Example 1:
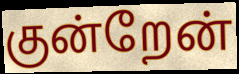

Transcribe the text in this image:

குன்றேன்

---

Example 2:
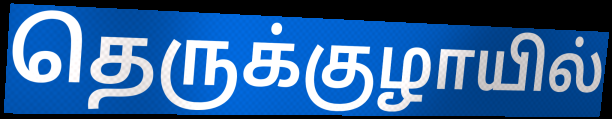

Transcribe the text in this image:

தெருக்குழாயில்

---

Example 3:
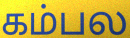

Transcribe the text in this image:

கம்பல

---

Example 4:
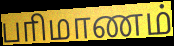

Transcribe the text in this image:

பரிமாணம்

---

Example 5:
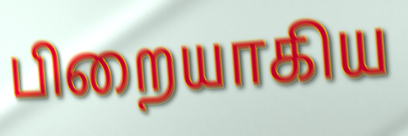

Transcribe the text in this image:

பிறையாகிய